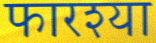
फारश्या